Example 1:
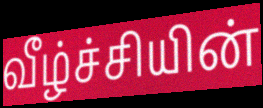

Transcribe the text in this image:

வீழ்ச்சியின்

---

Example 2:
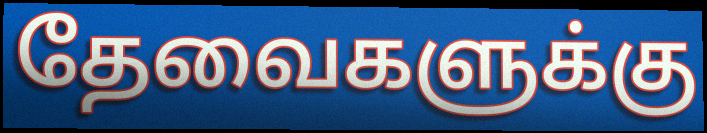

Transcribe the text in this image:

தேவைகளுக்கு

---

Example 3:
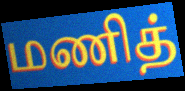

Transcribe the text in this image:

மணித்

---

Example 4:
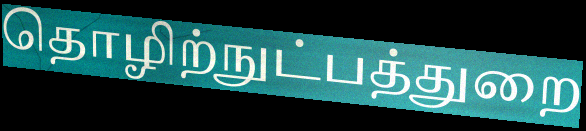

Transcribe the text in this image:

தொழிற்நுட்பத்துறை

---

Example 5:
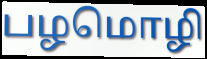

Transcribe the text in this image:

பழமொழி